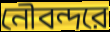
নৌবন্দরে